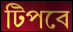
টিপবে